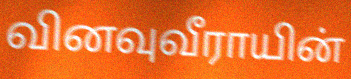
வினவுவீராயின்